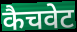
कैचवेट